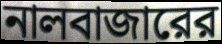
নালবাজারের